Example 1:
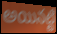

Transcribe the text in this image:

అయినట్టి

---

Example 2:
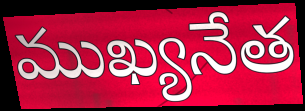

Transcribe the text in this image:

ముఖ్యనేత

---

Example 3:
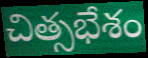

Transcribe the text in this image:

చిత్సభేశం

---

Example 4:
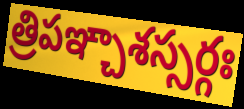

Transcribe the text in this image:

త్రిపఞ్చాశస్సర్గః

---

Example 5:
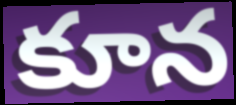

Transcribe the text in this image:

కూన